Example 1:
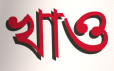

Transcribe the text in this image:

খাও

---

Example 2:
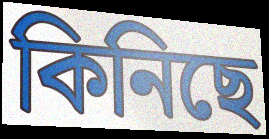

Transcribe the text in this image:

কিনিছে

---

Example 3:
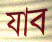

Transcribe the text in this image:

যাব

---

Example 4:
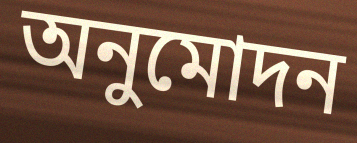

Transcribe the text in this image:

অনুমোদন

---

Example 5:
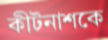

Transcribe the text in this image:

কীটনাশকে